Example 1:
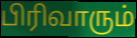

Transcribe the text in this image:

பிரிவாரும்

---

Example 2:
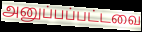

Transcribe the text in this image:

அனுப்பப்பட்டவை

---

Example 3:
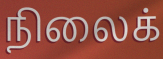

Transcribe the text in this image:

நிலைக்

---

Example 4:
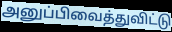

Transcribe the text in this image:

அனுப்பிவைத்துவிட்டு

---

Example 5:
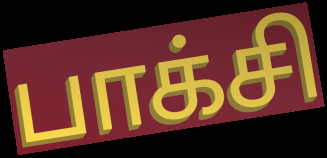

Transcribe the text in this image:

பாக்சி